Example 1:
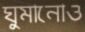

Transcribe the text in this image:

ঘুমানোও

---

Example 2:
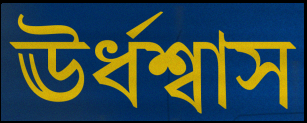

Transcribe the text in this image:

ঊর্ধশ্বাস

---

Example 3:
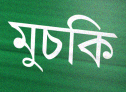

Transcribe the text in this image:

মুচকি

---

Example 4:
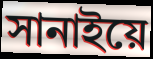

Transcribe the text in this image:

সানাইয়ে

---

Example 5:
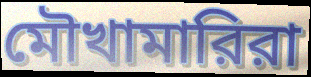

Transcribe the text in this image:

মৌখামারিরা